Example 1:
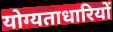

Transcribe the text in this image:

योग्यताधारियों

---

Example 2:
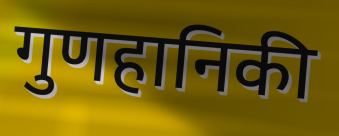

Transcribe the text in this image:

गुणहानिकी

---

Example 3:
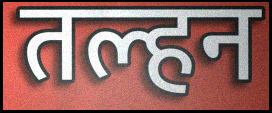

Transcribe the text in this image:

तल्हन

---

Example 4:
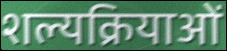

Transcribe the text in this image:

शल्यक्रियाओं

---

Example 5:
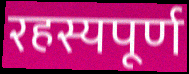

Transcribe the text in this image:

रहस्यपूर्ण